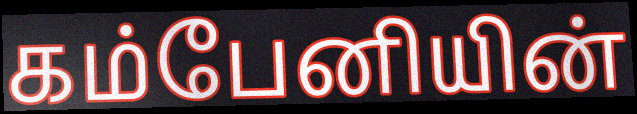
கம்பேனியின்